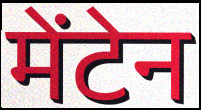
मेंटेन